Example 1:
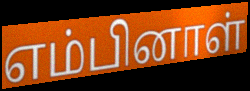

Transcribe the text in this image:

எம்பினாள்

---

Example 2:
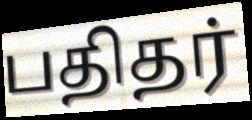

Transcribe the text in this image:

பதிதர்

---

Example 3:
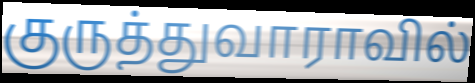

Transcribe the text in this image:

குருத்துவாராவில்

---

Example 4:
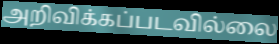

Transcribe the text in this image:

அறிவிக்கப்படவில்லை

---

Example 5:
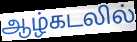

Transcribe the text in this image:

ஆழ்கடலில்